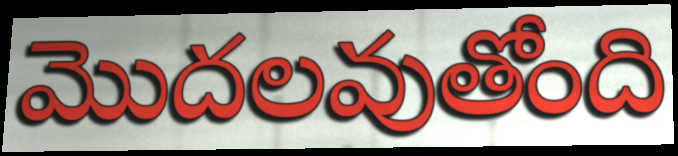
మొదలవుతోంది